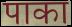
पाका